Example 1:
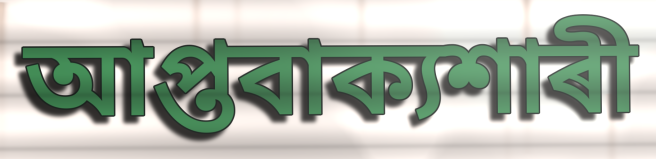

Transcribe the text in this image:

আপ্তবাক্যশাৰী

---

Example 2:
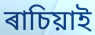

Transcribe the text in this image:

ৰাচিয়াই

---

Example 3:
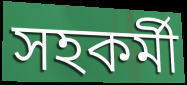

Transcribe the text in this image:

সহকৰ্মী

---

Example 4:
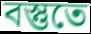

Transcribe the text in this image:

বস্তুতে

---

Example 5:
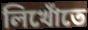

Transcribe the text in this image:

লিখোঁতে